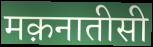
मक़नातीसी